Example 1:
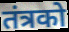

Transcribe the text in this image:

तंत्रको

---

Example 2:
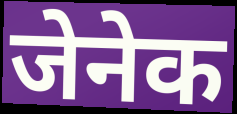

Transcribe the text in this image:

जेनेक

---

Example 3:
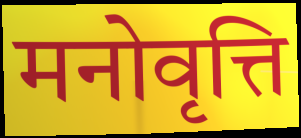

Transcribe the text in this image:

मनोवृत्ति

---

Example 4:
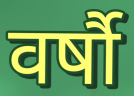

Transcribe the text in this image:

वर्षौ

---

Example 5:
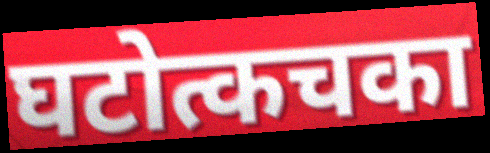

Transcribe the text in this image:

घटोत्कचका